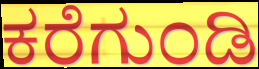
ಕರೆಗುಂಡಿ